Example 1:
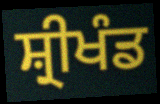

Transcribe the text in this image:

ਸ਼੍ਰੀਖੰਡ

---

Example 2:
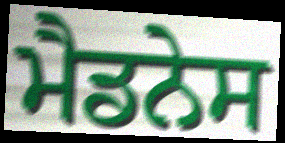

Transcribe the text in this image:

ਮੈਡਨੇਸ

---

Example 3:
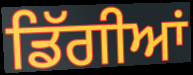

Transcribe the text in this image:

ਡਿੱਗੀਆਂ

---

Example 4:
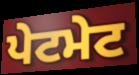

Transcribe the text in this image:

ਪੇਟਮੇਟ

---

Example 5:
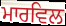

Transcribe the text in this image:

ਮਾਰਵਿਲ